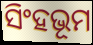
ସିଂହଭୂମ